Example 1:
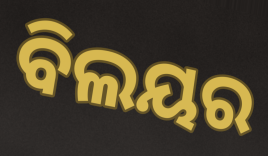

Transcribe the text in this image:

ବିଲୟର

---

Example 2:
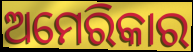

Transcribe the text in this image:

ଅମେରିକାର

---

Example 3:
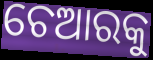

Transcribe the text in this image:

ଚେଆରକୁ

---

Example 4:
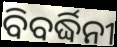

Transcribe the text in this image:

ବିବର୍ଦ୍ଧିନୀ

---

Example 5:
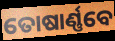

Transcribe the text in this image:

ତୋଷାର୍ଣ୍ଣବେ